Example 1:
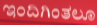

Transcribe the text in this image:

ಇಂದಿಗಿಂತಲೂ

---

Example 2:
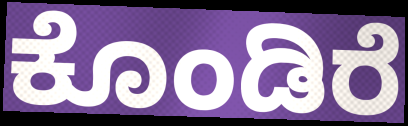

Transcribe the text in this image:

ಕೊಂಡಿರೆ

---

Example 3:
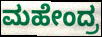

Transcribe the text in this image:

ಮಹೇಂದ್ರ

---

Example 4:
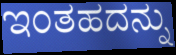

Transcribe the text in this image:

ಇಂತಹದನ್ನು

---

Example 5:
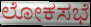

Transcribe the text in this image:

ಲೋಕಸಭೆ